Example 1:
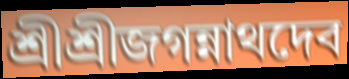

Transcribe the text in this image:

শ্রীশ্রীজগন্নাথদেব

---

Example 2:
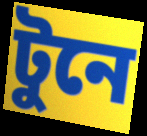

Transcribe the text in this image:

টুনে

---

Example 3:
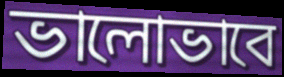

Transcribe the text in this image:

ভালোভাবে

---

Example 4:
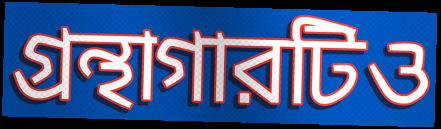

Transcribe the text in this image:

গ্রন্থাগারটিও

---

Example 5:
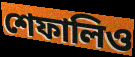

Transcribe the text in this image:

শেফালিও